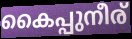
കൈപ്പുനീര്